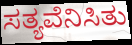
ಸತ್ಯವೆನಿಸಿತು